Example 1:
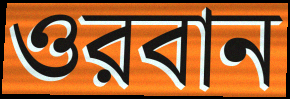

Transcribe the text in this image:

ওরবান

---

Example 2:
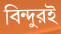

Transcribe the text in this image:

বিন্দুরই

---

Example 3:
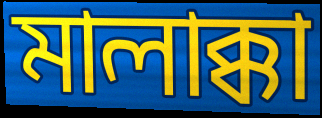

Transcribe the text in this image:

মালাক্কা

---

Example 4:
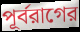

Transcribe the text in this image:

পূর্বরাগের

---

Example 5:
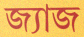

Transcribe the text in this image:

জ্যাজ